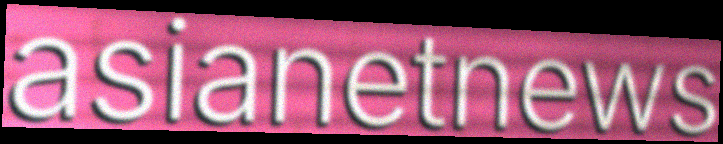
asianetnews